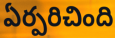
ఏర్పరిచింది